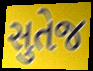
સુતેજ